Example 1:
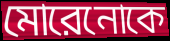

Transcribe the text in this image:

মোরেনোকে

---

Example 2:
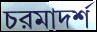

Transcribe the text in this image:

চরমাদর্শ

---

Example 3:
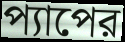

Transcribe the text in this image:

প্যাপের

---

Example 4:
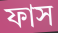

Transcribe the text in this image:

ফাস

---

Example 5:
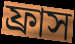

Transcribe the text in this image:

ফ্রাস